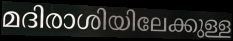
മദിരാശിയിലേക്കുള്ള